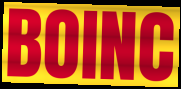
BOINC